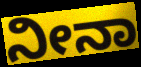
ನೀನಾ